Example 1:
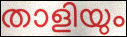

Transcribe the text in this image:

താളിയും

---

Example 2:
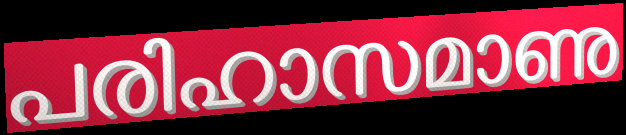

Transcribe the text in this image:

പരിഹാസമാണു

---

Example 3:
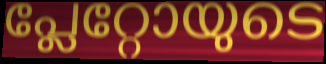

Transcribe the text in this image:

പ്ലേറ്റോയുടെ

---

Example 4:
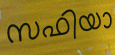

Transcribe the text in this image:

സഫിയാ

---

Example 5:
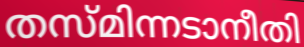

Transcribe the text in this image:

തസ്മിന്നടാനീതി